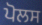
ਪੋਲਸ